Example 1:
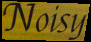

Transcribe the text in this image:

Noisy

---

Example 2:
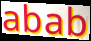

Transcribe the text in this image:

abab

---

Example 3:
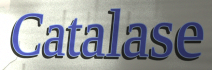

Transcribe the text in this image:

Catalase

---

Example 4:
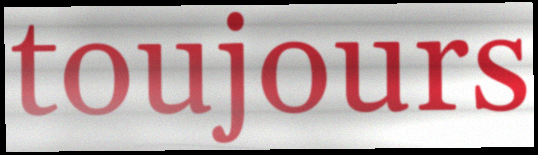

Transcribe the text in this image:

toujours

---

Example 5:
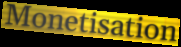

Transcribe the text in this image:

Monetisation